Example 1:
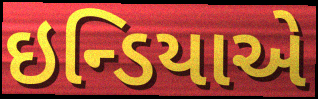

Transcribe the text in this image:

ઇન્ડિયાએ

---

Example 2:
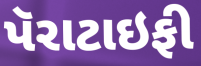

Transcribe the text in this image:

પૅરાટાઇફી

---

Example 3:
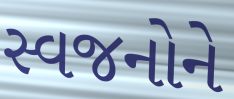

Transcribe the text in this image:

સ્વજનોને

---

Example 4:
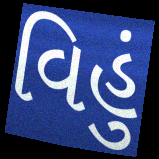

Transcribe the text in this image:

વિહું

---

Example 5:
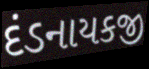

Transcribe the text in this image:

દંડનાયકજી